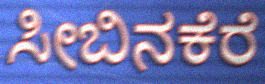
ಸೀಬಿನಕೆರೆ